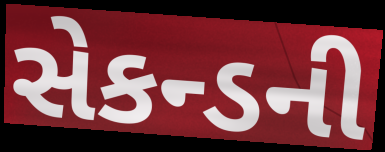
સેકન્ડની